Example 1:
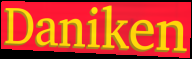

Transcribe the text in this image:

Daniken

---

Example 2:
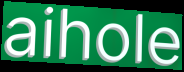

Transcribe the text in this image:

aihole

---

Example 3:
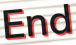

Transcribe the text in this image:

End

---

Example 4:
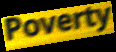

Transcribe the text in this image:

Poverty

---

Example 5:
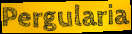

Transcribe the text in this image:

Pergularia